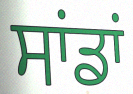
ਸਾਂਡਾਂ